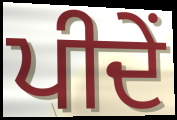
ਪੀਦੇਂ